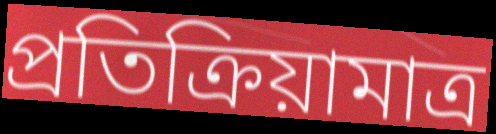
প্রতিক্রিয়ামাত্র